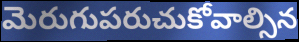
మెరుగుపరుచుకోవాల్సిన